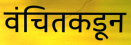
वंचितकडून